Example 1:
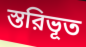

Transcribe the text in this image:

স্তরিভূত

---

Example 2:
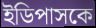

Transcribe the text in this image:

ইডিপাসকে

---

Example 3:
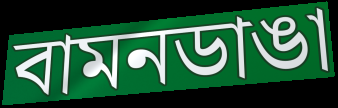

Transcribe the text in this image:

বামনডাঙা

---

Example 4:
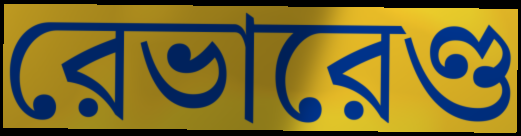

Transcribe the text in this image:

রেভারেণ্ড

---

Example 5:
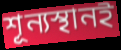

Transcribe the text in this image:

শূন্যস্থানই